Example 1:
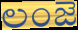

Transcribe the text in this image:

లంజె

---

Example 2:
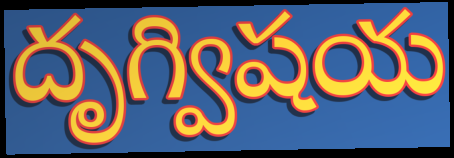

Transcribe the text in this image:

దృగ్విషయ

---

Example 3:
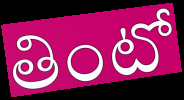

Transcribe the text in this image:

తింటో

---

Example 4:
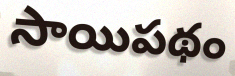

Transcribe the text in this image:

సాయిపథం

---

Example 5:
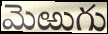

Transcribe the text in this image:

మెఱుగు